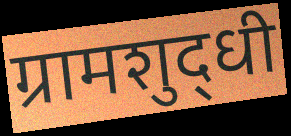
ग्रामशुद्धी